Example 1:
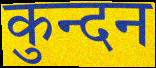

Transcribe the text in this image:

कुन्‍दन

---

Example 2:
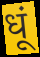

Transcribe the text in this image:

धूं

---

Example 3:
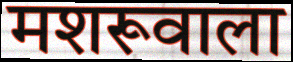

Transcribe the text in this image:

मशरूवाला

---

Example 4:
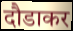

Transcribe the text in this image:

दौडाकर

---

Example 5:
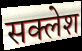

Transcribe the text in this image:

सक्लेश